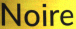
Noire